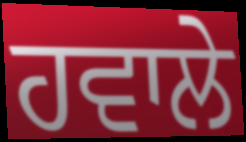
ਹਵਾਲੇ